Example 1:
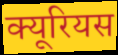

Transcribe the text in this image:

क्यूरियस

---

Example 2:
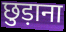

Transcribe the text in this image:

छुड़ाना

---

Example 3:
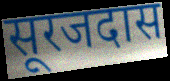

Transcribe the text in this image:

सूरजदास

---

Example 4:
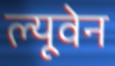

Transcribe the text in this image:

ल्यूवेन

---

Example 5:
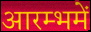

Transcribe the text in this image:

आरम्भमें